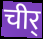
चीर्